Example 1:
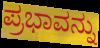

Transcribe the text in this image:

ಪ್ರಭಾವನ್ನು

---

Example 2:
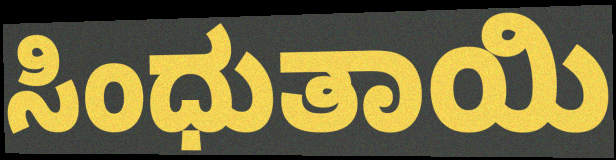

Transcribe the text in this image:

ಸಿಂಧುತಾಯಿ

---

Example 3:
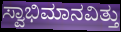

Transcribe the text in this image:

ಸ್ವಾಭಿಮಾನವಿತ್ತು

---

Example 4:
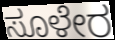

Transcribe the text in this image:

ಸೂಳೇರ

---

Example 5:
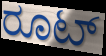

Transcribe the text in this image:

ರೂಟ್